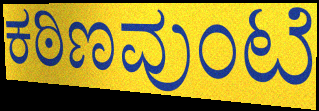
ಕಠಿಣವುಂಟೆ